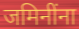
जमिनींना